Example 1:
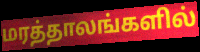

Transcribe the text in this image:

மரத்தாலங்களில்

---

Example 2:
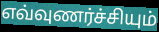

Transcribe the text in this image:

எவ்வுணர்ச்சியும்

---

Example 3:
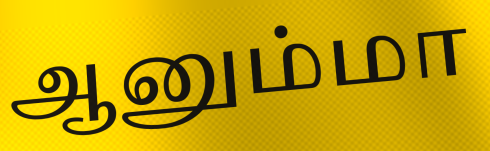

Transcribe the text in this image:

ஆனும்மா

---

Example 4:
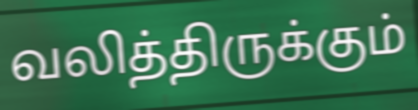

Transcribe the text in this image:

வலித்திருக்கும்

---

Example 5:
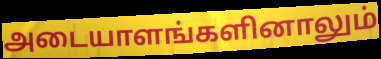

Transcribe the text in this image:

அடையாளங்களினாலும்